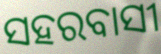
ସହରବାସୀ